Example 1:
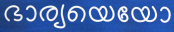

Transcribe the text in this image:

ഭാര്യയെയോ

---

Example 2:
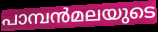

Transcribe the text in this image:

പാമ്പൻമലയുടെ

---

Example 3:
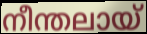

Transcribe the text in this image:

നീന്തലായ്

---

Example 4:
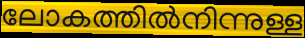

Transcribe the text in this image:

ലോകത്തിൽനിന്നുള്ള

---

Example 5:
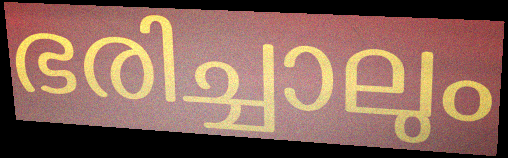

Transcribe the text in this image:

ഭരിച്ചാലും